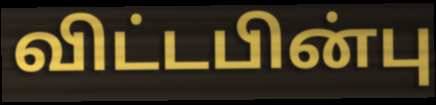
விட்டபின்பு